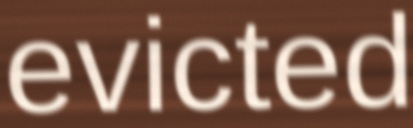
evicted